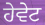
ਹੇਵੇਟ